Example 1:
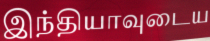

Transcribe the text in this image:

இந்தியாவுடைய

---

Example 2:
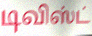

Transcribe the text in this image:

டிவிஸ்ட்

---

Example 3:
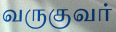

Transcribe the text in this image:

வருகுவர்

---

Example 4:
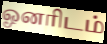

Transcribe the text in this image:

ஓனரிடம்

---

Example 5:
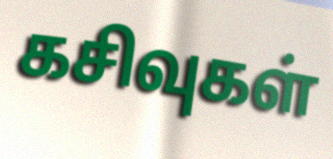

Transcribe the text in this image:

கசிவுகள்